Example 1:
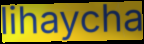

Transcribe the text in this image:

lihaycha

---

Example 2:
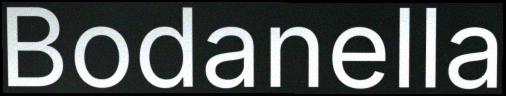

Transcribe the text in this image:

Bodanella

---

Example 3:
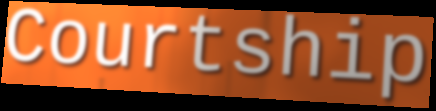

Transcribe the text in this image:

Courtship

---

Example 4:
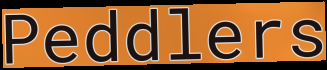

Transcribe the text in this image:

Peddlers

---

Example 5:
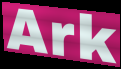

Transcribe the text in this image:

Ark